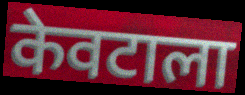
केवटाला